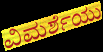
ವಿಮರ್ಶೆಯು